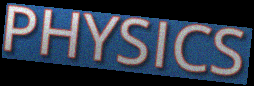
PHYSICS